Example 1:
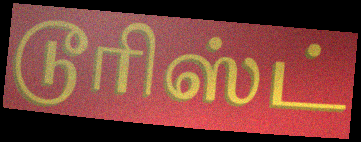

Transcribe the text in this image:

டூரிஸ்ட்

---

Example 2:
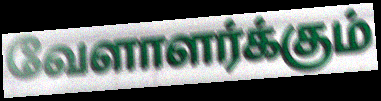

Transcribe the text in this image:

வேளாளர்க்கும்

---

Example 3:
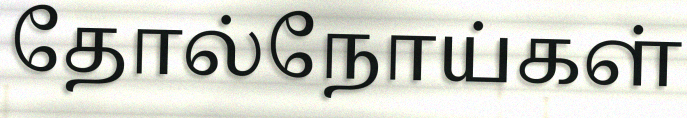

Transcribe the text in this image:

தோல்நோய்கள்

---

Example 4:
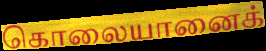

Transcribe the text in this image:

கொலையானைக்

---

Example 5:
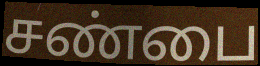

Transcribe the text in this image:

சண்பை